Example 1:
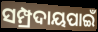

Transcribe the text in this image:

ସମ୍ପ୍ରଦାୟପାଇଁ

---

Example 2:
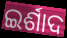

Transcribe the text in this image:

ଇର୍ଶାଦ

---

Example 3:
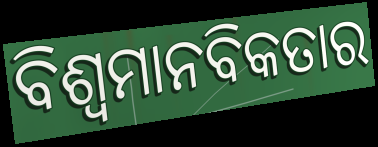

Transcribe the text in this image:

ବିଶ୍ଵମାନବିକତାର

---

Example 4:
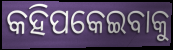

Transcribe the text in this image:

କହିପକେଇବାକୁ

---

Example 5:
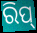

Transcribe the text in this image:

ରିପ୍